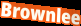
Brownlee